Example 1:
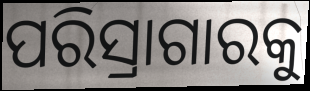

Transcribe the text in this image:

ପରିସ୍ରାଗାରକୁ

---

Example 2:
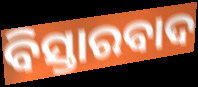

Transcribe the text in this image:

ବିସ୍ତାରବାଦ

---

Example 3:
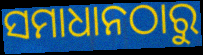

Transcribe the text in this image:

ସମାଧାନଠାରୁ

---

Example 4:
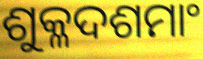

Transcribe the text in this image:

ଶୁକ୍ଳଦଶମାଂ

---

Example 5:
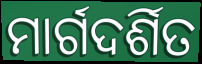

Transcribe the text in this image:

ମାର୍ଗଦର୍ଶିତ